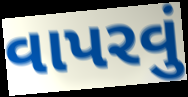
વાપરવું